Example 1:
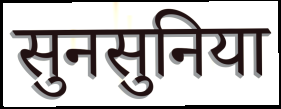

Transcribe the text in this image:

सुनसुनिया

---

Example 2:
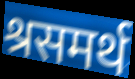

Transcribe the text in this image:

श्रसमर्थ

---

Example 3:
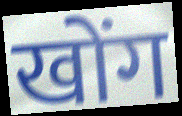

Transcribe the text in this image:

खोंग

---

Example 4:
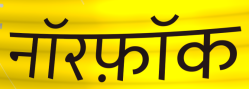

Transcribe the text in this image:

नॉरफ़ॉक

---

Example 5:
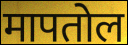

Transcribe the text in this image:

मापतोल